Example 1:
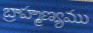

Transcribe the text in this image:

బ్రాహ్మణ్యము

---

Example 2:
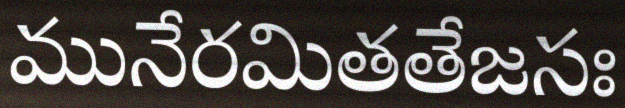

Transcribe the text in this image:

మునేరమితతేజసః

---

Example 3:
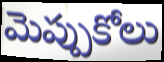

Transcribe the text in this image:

మెప్పుకోలు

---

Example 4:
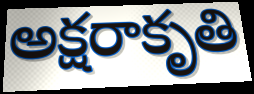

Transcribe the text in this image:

అక్షరాకృతి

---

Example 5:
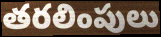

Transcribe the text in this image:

తరలింపులు